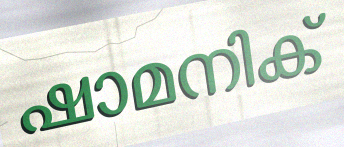
ഷാമനിക്